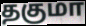
தகுமா